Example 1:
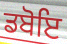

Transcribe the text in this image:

ਡਬੋਇ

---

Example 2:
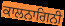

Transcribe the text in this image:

ਕਾਲਨਾਗਿਨੀ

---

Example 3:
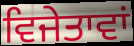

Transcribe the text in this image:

ਵਿਜੇਤਾਵਾਂ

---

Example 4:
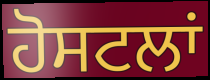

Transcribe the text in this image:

ਹੋਸਟਲਾਂ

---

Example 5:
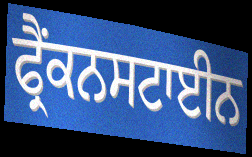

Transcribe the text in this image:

ਫ੍ਰੈਂਕਨਸਟਾਈਨ